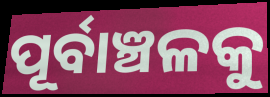
ପୂର୍ବାଞ୍ଚଳକୁ